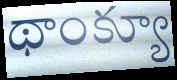
థాంక్యూ